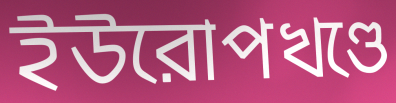
ইউরোপখণ্ডে